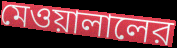
মেওয়ালালের